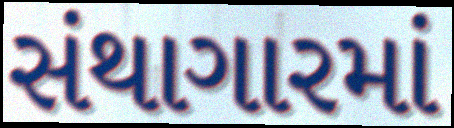
સંથાગારમાં